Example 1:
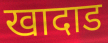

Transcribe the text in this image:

खादाड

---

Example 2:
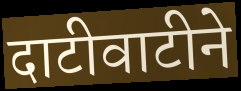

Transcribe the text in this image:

दाटीवाटीने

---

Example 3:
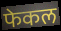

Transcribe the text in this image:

फेकल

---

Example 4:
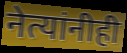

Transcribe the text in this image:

नेत्यांनीही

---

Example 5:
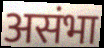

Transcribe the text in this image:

असंभा